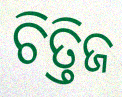
ଚିତ୍ତିଜ